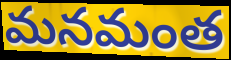
మనమంత